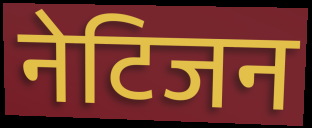
नेटिजन